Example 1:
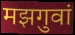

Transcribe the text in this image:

मझगुवां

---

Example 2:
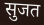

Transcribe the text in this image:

सुजत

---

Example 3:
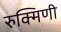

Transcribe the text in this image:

रुक्मिणी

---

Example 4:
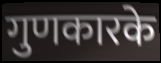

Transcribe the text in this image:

गुणकारके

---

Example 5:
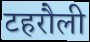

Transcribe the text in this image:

टहरौली